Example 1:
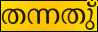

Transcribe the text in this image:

തന്നതു്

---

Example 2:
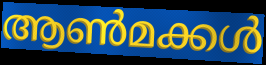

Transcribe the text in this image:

ആൺമക്കൾ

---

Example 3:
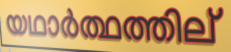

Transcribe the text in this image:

യഥാർത്ഥത്തില്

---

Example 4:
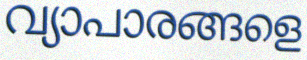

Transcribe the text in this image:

വ്യാപാരങ്ങളെ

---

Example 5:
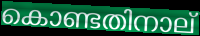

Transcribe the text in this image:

കൊണ്ടതിനാല്